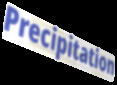
Precipitation